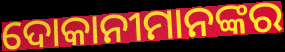
ଦୋକାନୀମାନଙ୍କର